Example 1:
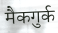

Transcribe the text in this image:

मैकगुर्क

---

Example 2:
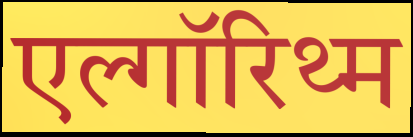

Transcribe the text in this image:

एल्गॉरिथ्म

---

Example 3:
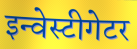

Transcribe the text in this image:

इन्वेस्टीगेटर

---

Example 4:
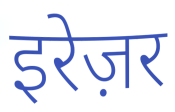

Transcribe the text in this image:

इरेज़र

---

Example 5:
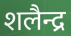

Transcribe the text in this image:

शलैन्द्र